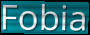
Fobia